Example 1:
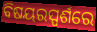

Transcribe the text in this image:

ବିଷୟରସ୍ପର୍ଶରେ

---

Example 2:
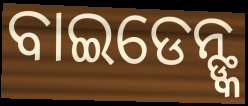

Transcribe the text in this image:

ବାଇଡେନ୍ଙ୍କ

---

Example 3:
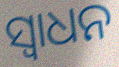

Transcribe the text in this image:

ସ୍ଵାଧନ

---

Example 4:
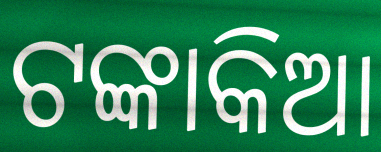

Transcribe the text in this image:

ଟଙ୍କାକିଆ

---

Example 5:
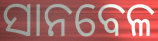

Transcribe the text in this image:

ସାନବେଳ